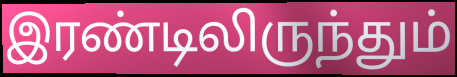
இரண்டிலிருந்தும்